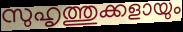
സുഹൃത്തുക്കളായും